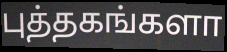
புத்தகங்களா